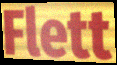
Flett